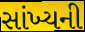
સાંખ્યની